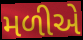
મળીએ